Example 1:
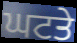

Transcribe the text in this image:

ਘਟਤੇ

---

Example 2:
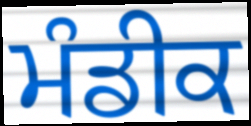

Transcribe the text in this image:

ਮੰਡੀਕ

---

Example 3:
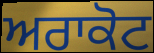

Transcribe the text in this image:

ਅਰਾਕੋਟ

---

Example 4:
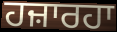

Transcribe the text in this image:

ਹਜ਼ਾਰਹਾ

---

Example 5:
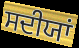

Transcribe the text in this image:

ਸਦੀਯਾਂ